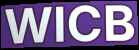
WICB